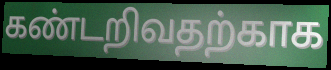
கண்டறிவதற்காக